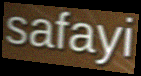
safayi